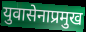
युवासेनाप्रमुख